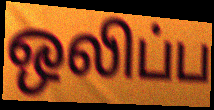
ஒலிப்ப